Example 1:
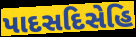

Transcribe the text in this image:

પાદસદિસેહિ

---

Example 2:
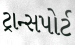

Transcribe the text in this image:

ટ્રાન્સપોર્ટ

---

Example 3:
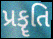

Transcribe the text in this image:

પ્રકૄતિ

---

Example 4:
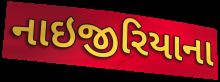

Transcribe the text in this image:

નાઇજીરિયાના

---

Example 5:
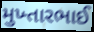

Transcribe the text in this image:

મુખ્તારભાઈ